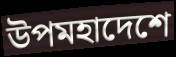
উপমহাদেশে